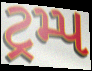
ટ્રમ્પ